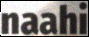
naahi